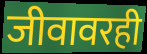
जीवावरही